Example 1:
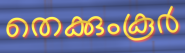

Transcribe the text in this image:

തെക്കുംകൂർ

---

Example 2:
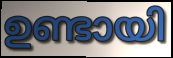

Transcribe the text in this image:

ഉണ്ടായി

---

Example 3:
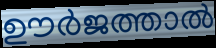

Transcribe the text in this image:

ഊർജത്താൽ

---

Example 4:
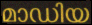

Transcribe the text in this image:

മാഡിയ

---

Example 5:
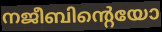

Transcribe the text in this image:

നജീബിന്റെയോ